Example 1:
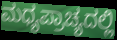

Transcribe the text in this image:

ಮಧ್ಯಪ್ರಾಚ್ಯದಲ್ಲಿ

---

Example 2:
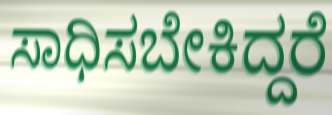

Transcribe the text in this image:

ಸಾಧಿಸಬೇಕಿದ್ದರೆ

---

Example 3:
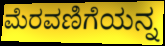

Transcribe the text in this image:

ಮೆರವಣಿಗೆಯನ್ನ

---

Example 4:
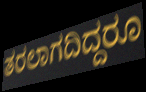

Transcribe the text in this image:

ತರಲಾಗದಿದ್ದರೂ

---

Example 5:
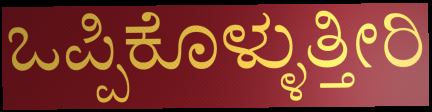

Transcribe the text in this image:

ಒಪ್ಪಿಕೊಳ್ಳುತ್ತೀರಿ